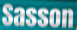
Sasson